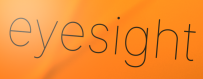
eyesight